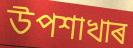
উপশাখাৰ